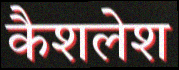
कैशलेश